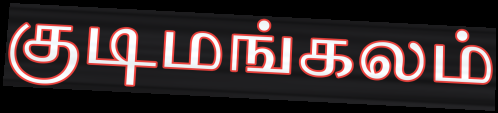
குடிமங்கலம்